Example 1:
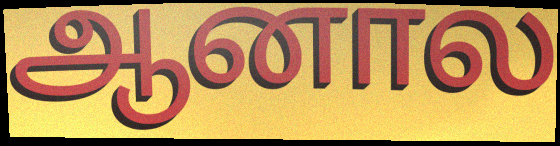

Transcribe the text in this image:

ஆனால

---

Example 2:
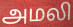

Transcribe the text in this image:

அமலி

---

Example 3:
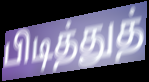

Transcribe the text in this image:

பிடித்துத்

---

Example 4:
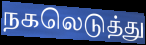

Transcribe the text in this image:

நகலெடுத்து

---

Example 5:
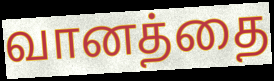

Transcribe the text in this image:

வானத்தை